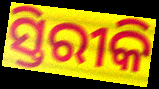
ସ୍ତିରୀକି